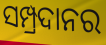
ସମ୍ପ୍ରଦାନର